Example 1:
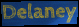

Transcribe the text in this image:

Delaney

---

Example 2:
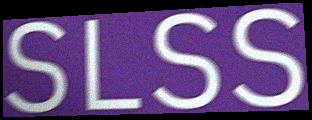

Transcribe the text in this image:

SLSS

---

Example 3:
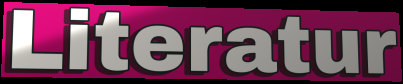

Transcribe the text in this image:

Literatur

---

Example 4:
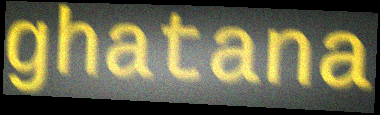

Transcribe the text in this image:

ghatana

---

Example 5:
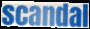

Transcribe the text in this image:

scandal